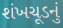
શંખચૂડનું